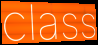
class